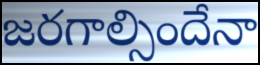
జరగాల్సిందేనా